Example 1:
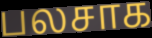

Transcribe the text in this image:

பலசாக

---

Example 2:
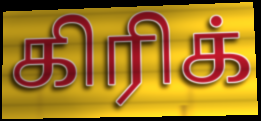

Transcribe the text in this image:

கிரிக்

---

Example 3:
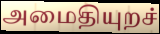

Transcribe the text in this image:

அமைதியுறச்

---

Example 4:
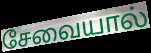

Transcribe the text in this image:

சேவையால்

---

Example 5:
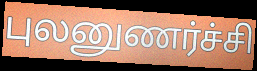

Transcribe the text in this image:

புலனுணர்ச்சி